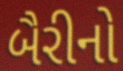
બૈરીનો